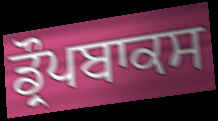
ਡ੍ਰੌਪਬਾਕਸ